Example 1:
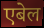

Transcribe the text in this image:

एबेल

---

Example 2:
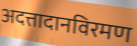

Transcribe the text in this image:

अदत्तादानविरमण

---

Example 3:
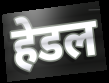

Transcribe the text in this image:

हेडल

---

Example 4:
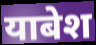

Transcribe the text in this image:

याबेश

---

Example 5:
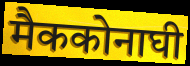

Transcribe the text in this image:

मैककोनाघी